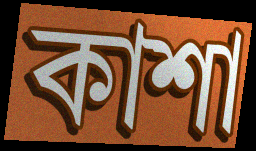
কাশা